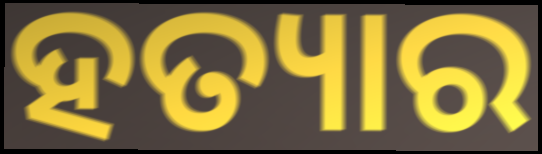
ହତ୍ୟାର